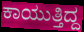
ಕಾಯುತ್ತಿದ್ದ